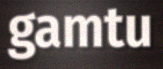
gamtu